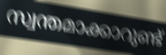
സ്വന്തമാക്കാറുണ്ട്